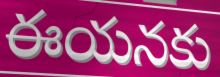
ఈయనకు